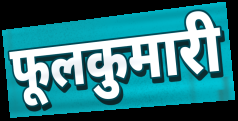
फूलकुमारी